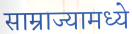
साम्राज्यामध्ये